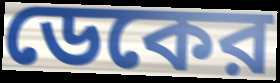
ডেকের